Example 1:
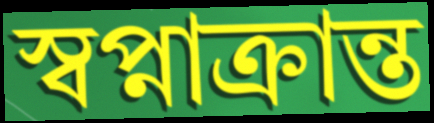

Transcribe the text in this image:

স্বপ্নাক্রান্ত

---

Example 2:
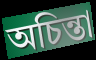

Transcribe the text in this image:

অচিন্তা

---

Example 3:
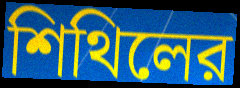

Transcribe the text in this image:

শিথিলের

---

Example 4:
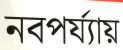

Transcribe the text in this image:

নবপর্য্যায়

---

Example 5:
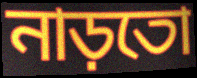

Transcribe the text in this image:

নাড়তো